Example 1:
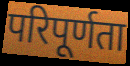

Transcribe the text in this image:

परिपूर्णता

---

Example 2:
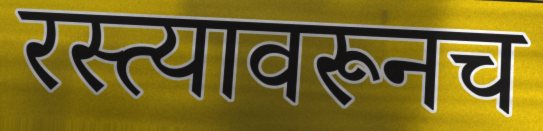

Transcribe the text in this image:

रस्त्यावरूनच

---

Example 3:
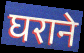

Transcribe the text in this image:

घराने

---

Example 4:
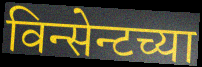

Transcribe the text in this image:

विन्सेन्टच्या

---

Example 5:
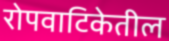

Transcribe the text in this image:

रोपवाटिकेतील